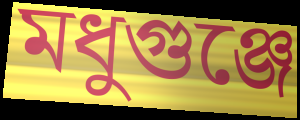
মধুগুঞ্জে